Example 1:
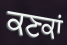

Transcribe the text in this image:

ਕਣਕਾਂ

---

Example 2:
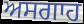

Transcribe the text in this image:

ਅਸਗਾਹ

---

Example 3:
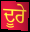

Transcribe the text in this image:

ਦੂਰੇ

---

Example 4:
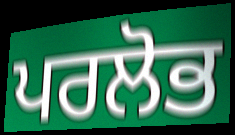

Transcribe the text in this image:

ਪਰਲੋਭ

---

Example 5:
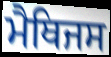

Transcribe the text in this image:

ਮੈਥਿਜਸ